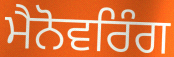
ਮੈਨੋਵਰਿੰਗ